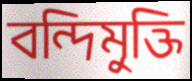
বন্দিমুক্তি